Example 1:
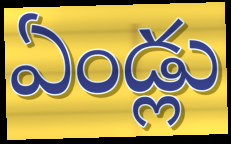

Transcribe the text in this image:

ఏండ్లు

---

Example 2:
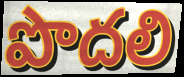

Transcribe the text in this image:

పొదలి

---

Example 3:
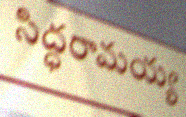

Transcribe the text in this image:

సిద్ధరామయ్య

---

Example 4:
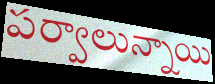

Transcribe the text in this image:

పర్వాలున్నాయి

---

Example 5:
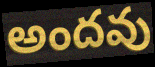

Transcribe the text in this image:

అందవు